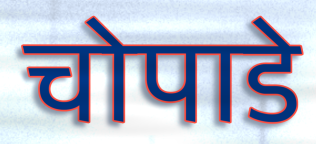
चोपाडे